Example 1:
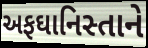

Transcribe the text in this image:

અફઘાનિસ્તાને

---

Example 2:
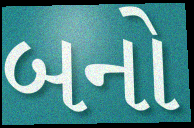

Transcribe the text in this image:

બનો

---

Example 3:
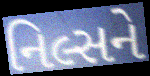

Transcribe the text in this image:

નિલ્સને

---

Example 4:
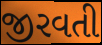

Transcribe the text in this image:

જીરવતી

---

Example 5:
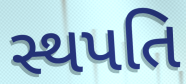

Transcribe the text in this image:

સ્થપતિ